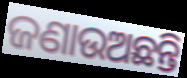
ଜଣାଉଅଛନ୍ତି